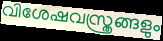
വിശേഷവസ്ത്രങ്ങളും